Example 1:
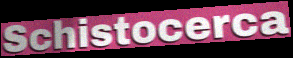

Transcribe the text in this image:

Schistocerca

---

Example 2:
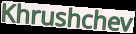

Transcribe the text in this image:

Khrushchev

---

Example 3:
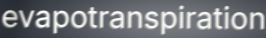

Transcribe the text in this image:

evapotranspiration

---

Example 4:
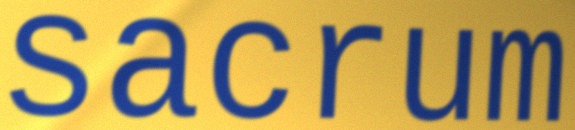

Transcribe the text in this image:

sacrum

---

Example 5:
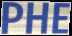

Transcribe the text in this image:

PHE